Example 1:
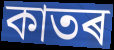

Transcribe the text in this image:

কাতৰ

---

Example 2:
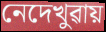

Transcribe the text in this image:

নেদেখুৱায়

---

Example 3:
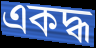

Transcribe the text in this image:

একদ্ধ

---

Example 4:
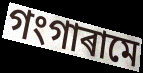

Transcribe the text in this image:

গংগাৰামে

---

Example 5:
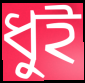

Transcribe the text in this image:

ধুই